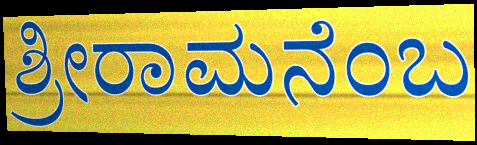
ಶ್ರೀರಾಮನೆಂಬ